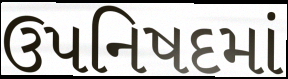
ઉપનિષદમાં